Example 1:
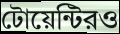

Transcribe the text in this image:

টোয়েন্টিরও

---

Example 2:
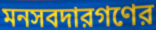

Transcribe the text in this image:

মনসবদারগণের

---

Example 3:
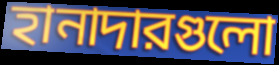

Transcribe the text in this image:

হানাদারগুলো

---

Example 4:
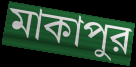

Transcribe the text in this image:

মাকাপুর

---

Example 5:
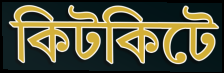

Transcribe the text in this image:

কিটকিটে